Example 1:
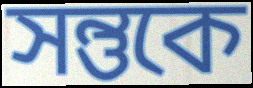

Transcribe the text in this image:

সন্তুকে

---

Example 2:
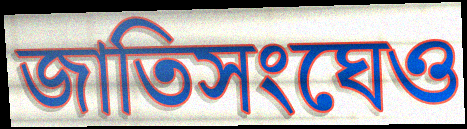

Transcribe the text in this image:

জাতিসংঘেও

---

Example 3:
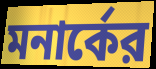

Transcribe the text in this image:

মনার্কের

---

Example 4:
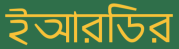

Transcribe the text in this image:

ইআরডির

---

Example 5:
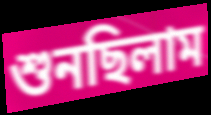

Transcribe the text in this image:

শুনছিলাম